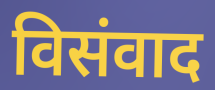
विसंवाद